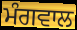
ਮੰਗਵਾਲ